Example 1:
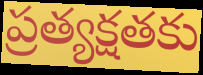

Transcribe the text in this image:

ప్రత్యక్షతకు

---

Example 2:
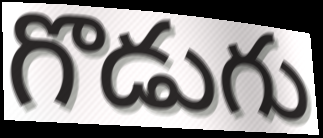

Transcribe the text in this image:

గొడుగు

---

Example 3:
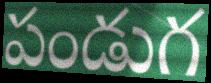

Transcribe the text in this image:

పండుగ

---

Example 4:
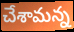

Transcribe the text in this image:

చేశామన్న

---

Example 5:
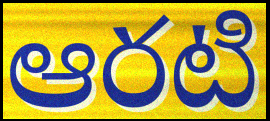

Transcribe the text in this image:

ఆరటి